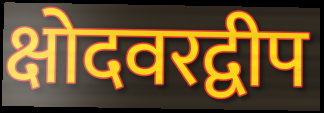
क्षोदवरद्वीप